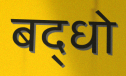
बद्धो